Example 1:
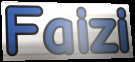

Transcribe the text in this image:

Faizi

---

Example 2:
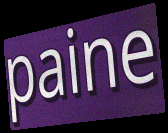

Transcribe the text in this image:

paine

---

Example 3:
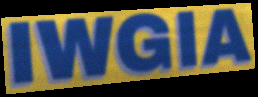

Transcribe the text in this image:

IWGIA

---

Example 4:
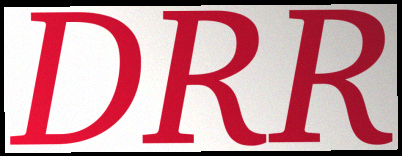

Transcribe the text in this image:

DRR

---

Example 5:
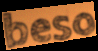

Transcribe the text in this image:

beso